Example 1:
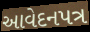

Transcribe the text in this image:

આવેદનપત્ર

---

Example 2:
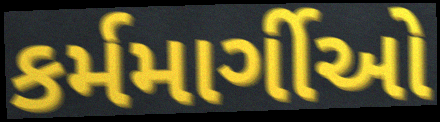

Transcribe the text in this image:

કર્મમાર્ગીઓ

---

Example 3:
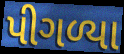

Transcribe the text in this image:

પીગળ્યા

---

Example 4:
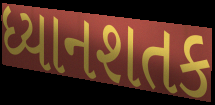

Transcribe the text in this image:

ધ્યાનશતક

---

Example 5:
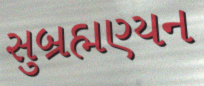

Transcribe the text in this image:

સુબ્રહ્મણ્યન